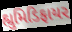
હ્યુમિડિફાયર